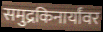
समुद्रकिनार्यांवर